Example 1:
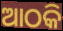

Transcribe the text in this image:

ଆଠକି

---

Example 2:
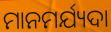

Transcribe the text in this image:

ମାନମର୍ଯ୍ୟଦା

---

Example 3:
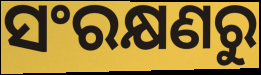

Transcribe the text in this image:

ସଂରକ୍ଷଣରୁ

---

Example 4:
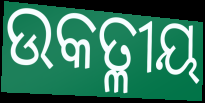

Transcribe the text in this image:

ଉକତ୍ଳୀୟ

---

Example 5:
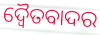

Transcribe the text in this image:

ଦ୍ୱୈତବାଦର